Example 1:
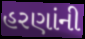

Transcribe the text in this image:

હરણાંની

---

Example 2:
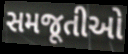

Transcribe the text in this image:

સમજૂતીઓ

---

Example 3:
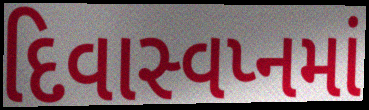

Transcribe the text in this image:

દિવાસ્વપ્નમાં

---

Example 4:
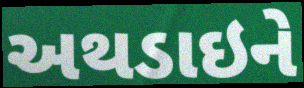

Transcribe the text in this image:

અથડાઇને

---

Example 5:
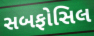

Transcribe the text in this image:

સબફોસિલ